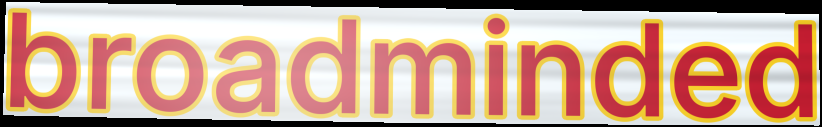
broadminded